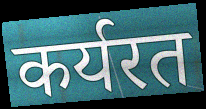
कर्यरत